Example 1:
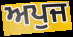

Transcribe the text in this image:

ਅਪੁਜ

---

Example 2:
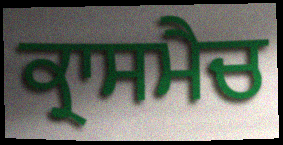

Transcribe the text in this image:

ਕ੍ਰਾਸਮੈਚ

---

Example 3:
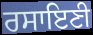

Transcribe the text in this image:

ਰਸਾਇਣੀ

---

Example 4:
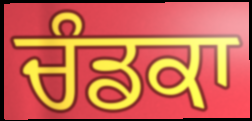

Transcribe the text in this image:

ਚੰਡਕਾ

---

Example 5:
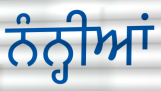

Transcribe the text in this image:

ਨੰਨ੍ਹੀਆਂ